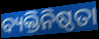
ବ୍ୟକ୍ତିନିଷ୍ଠତା